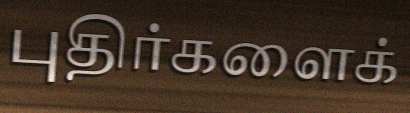
புதிர்களைக்